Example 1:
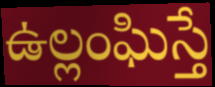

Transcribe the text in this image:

ఉల్లంఘిస్తే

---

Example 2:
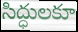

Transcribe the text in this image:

సిద్ధులకూ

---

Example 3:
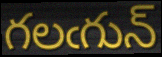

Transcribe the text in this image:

గలఁగున్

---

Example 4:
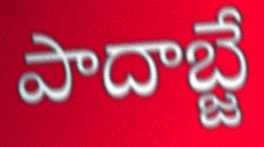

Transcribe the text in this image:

పాదాబ్జే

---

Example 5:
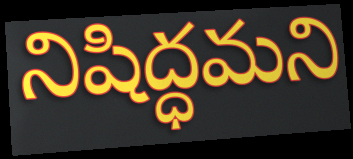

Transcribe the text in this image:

నిషిద్ధమని